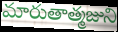
మారుతాత్మజుని